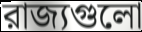
রাজ্যগুলো